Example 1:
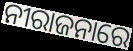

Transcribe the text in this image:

ନୀରାଜନାରେ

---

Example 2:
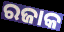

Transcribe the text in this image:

ରଜାକ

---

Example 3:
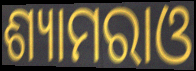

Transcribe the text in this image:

ଶ୍ୟାମରାଓ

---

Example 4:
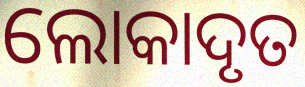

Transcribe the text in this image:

ଲୋକାଦୃତ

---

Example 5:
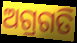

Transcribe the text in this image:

ଅଗ୍ରଗତି